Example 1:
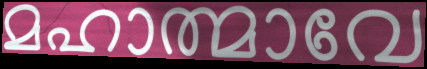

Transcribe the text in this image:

മഹാത്മാവേ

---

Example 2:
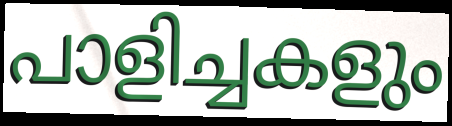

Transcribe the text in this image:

പാളിച്ചകളും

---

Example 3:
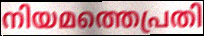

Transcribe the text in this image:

നിയമത്തെപ്രതി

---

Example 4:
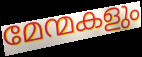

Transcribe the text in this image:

മേന്മകളും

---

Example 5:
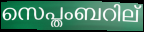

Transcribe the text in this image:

സെപ്തംബറില്